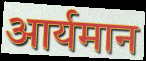
आर्यमान